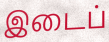
இடைப்